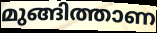
മുങ്ങിത്താണ